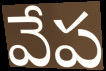
వేప